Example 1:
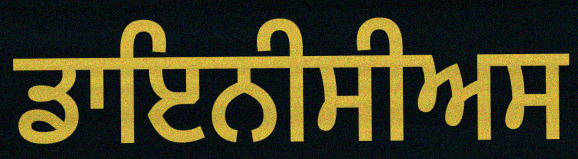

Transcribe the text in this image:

ਡਾਇਨੀਸੀਅਸ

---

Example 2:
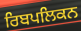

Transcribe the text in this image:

ਰਿਬਪਲਿਕਨ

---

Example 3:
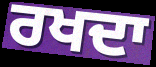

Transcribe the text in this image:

ਰਖਦਾ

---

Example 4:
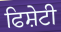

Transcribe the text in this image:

ਫਿਸ਼ੇਟੀ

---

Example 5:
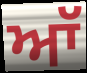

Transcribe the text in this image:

ਆੱ